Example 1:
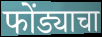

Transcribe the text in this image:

फोंड्याचा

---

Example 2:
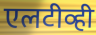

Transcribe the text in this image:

एलटीव्ही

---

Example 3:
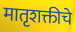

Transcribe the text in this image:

मातृशक्तीचे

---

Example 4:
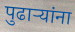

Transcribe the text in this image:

पुढाऱ्यांना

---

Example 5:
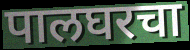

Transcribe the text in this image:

पालघरचा